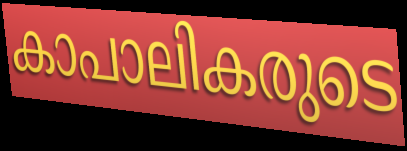
കാപാലികരുടെ